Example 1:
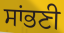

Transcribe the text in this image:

ਸਾਂਭਣੀ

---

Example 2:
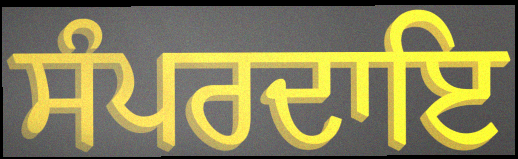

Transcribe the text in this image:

ਸੰਪਰਦਾਇ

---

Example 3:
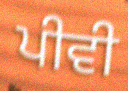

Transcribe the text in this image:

ਪੀਵੀ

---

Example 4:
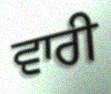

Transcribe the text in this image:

ਵਾਰੀ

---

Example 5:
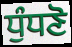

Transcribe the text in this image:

ਧੁੰਧਣੋ